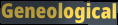
Geneological